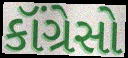
કૉંગ્રેસો